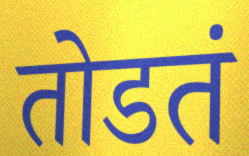
तोडतं